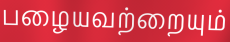
பழையவற்றையும்